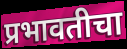
प्रभावतीचा